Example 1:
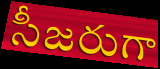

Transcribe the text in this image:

సీజరుగా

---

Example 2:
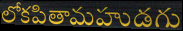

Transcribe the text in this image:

లోకపితామహుడగు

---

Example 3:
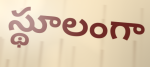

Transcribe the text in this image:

స్థూలంగా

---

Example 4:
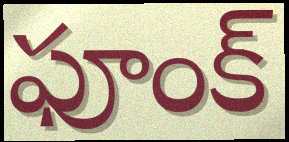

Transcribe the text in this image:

ఫూంక్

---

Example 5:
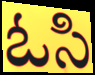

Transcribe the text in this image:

ఓసి